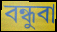
বন্ধুবা